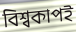
বিশ্বকাপই